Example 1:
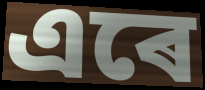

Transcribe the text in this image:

এৰে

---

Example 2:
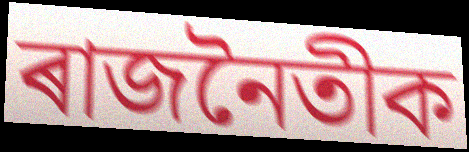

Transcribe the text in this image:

ৰাজনৈতীক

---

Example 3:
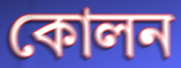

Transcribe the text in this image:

কোলন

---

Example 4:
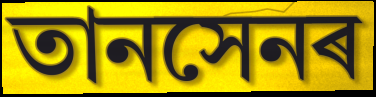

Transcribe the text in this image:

তানসেনৰ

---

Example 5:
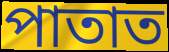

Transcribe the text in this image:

পাতাত